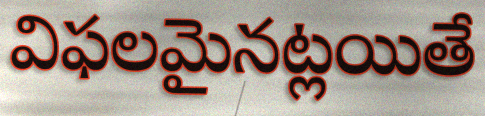
విఫలమైనట్లయితే